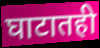
घाटातही